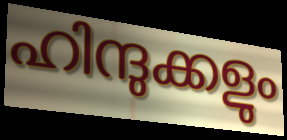
ഹിന്ദുക്കളും